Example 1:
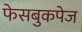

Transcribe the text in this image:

फेसबुकपेज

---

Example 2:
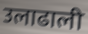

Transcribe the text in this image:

उलाढाली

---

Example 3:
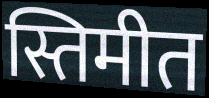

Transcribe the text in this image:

स्तिमीत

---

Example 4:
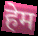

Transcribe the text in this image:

हेम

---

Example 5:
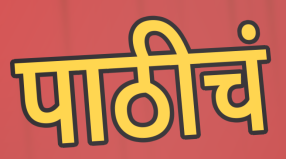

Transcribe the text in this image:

पाठीचं